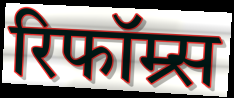
रिफॉम्र्स